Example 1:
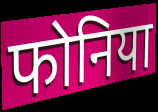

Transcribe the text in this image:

फोनिया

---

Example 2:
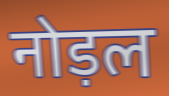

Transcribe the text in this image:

नोड़ल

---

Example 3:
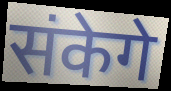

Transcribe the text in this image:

संकेगे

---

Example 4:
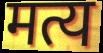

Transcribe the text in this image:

मत्य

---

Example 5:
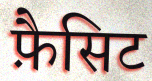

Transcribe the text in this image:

फ़ैसिट